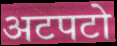
अटपटो